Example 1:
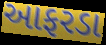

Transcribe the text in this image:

આફરડા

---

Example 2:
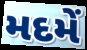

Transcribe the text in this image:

મદમેં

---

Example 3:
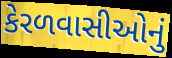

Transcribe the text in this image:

કેરળવાસીઓનું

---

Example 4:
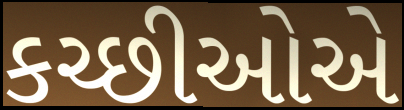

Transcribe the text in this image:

કચ્છીઓએ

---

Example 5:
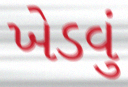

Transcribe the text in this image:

ખેડવું